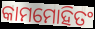
କାମମୋହିତଂ